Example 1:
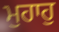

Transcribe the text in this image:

ਮੁਹਾਹੁ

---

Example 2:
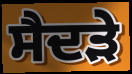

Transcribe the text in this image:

ਸੈਦੜੇ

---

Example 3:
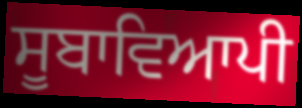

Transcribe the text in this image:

ਸੂਬਾਵਿਆਪੀ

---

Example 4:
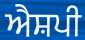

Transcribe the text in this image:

ਐਸ਼ਪੀ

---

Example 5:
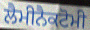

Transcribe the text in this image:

ਲੈਮੀਨੈਕਟੋਮੀ